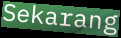
Sekarang